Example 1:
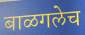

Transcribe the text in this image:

बाळगलेच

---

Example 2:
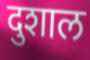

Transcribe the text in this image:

दुशाल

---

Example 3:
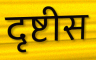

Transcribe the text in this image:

दृष्टीस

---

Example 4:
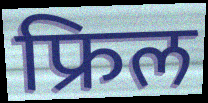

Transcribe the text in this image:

फ्रिल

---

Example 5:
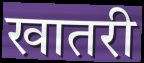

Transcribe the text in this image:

खातरी